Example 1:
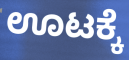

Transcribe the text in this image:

ಊಟಕ್ಕೆ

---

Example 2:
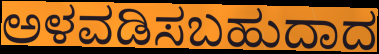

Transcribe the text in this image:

ಅಳವಡಿಸಬಹುದಾದ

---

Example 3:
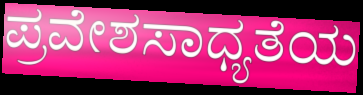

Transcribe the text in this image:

ಪ್ರವೇಶಸಾಧ್ಯತೆಯ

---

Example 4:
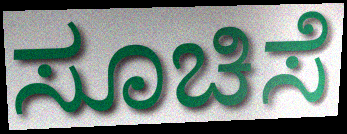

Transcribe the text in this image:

ಸೂಚಿಸೆ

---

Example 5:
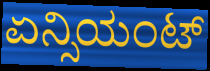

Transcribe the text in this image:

ಏನ್ಸಿಯಂಟ್